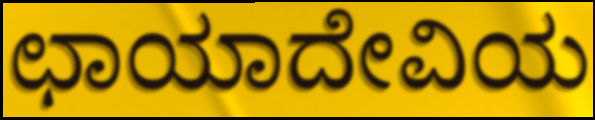
ಛಾಯಾದೇವಿಯ